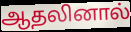
ஆதலினால்